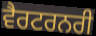
ਵੈਰਟਰਨਰੀ